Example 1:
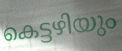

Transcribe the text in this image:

കെട്ടഴിയും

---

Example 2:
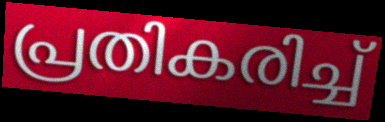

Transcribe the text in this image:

പ്രതികരിച്ച്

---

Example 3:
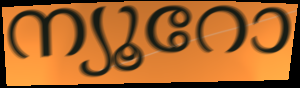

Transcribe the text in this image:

ന്യൂറോ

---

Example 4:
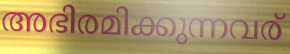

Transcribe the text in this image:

അഭിരമിക്കുന്നവര്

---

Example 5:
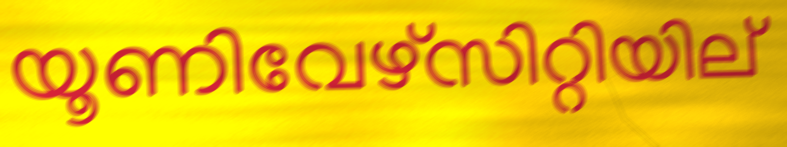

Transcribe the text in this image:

യൂണിവേഴ്സിറ്റിയില്